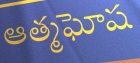
ఆత్మఘోష